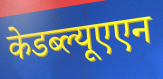
केडब्ल्यूएएन